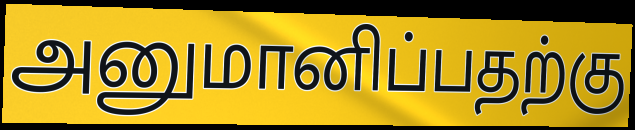
அனுமானிப்பதற்கு